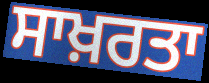
ਸਾਖ਼ਰਤਾ